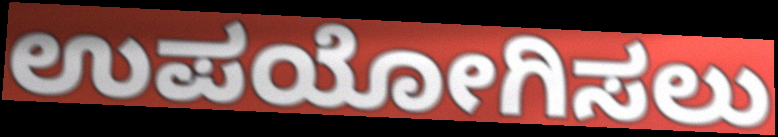
ಉಪಯೋಗಿಸಲು